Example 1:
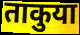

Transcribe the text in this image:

ताकुया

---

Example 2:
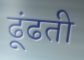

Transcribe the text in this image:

ढूंढती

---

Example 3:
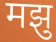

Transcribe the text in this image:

मझु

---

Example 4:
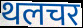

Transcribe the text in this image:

थलचर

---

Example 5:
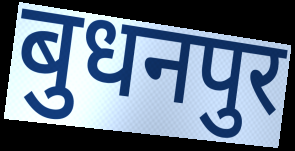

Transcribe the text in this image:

बुधनपुर